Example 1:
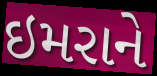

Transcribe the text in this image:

ઇમરાને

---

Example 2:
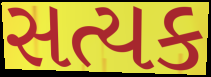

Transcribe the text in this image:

સત્યક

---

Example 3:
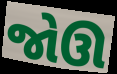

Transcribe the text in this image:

જોઊ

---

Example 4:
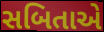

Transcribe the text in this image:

સબિતાએ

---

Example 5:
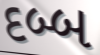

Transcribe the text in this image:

દબ્બ